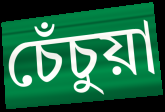
চেঁচুয়া